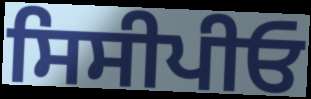
ਸਿਸੀਪੀਓ